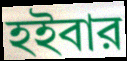
হইবার